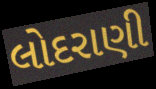
લોદરાણી